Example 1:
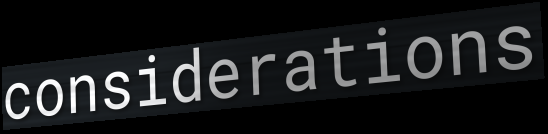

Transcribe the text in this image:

considerations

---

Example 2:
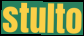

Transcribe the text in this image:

stulto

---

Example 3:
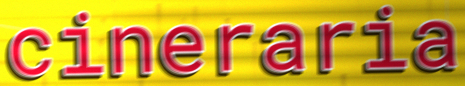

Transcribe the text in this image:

cineraria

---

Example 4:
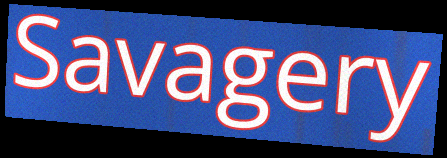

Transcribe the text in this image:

Savagery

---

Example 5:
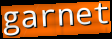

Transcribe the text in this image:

garnet